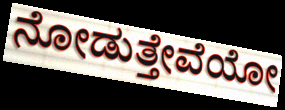
ನೋಡುತ್ತೇವೆಯೋ